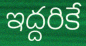
ఇద్దరికే